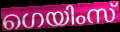
ഗെയിംസ്